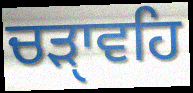
ਚੜੑਾਵਹਿ